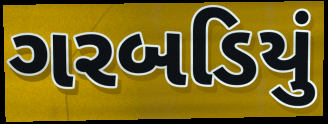
ગરબડિયું